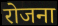
रोजना